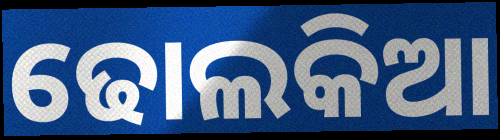
ଢୋଲକିଆ